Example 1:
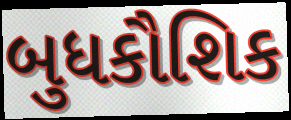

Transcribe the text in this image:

બુધકૌશિક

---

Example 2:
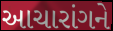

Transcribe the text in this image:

આચારાંગને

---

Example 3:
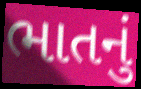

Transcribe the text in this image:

ભાતનું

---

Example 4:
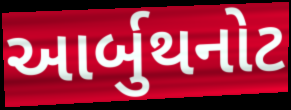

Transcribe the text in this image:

આર્બુથનોટ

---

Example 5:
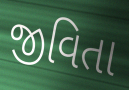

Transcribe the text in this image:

જીવિતા